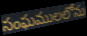
సంఘములలోను